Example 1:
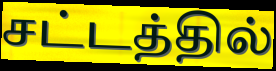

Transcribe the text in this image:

சட்டத்தில்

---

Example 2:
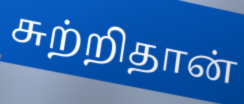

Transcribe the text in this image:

சுற்றிதான்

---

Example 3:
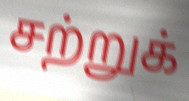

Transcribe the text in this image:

சற்றுக்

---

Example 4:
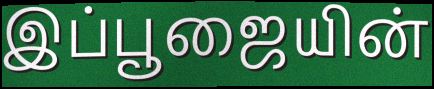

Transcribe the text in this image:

இப்பூஜையின்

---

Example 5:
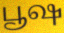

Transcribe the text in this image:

பூஷ